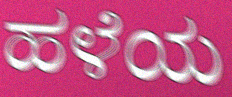
ಹಳೆಯ